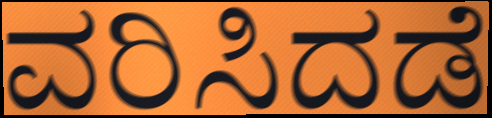
ವರಿಸಿದಡೆ